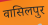
वासिलपुर